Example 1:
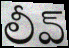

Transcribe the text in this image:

లీవ్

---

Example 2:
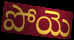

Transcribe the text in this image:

పోయె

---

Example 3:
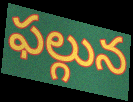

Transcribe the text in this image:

ఫల్గున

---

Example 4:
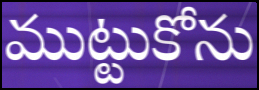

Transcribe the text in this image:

ముట్టుకోను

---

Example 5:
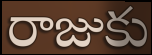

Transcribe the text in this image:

రాజుకు